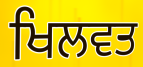
ਖਿਲਵਤ